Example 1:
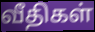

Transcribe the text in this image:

வீதிகள்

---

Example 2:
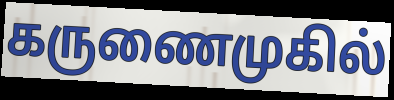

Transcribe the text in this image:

கருணைமுகில்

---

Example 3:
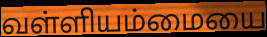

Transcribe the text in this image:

வள்ளியம்மையை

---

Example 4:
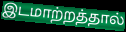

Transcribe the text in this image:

இடமாற்றத்தால்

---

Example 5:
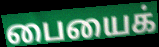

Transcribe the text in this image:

பையைக்